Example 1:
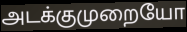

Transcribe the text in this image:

அடக்குமுறையோ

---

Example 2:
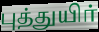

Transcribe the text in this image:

புத்துயிர்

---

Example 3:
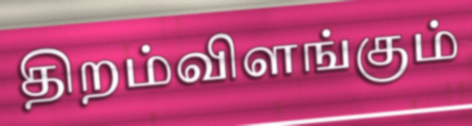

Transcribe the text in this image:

திறம்விளங்கும்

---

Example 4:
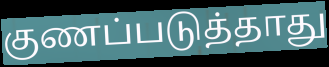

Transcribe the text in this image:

குணப்படுத்தாது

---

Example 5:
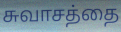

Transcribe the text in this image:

சுவாசத்தை